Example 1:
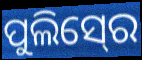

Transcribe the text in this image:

ପୁଲିସ୍‍ରେ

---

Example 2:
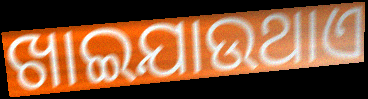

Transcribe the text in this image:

ଖାଇଯାଉଥାଏ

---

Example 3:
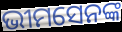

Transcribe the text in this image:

ଭୀମସେନଙ୍କ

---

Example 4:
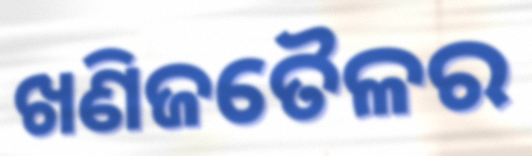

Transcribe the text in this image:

ଖଣିଜତୈଳର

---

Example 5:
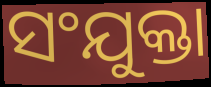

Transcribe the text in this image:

ସଂଯୁକ୍ତା